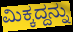
ಮಿಕ್ಕದ್ದನ್ನು